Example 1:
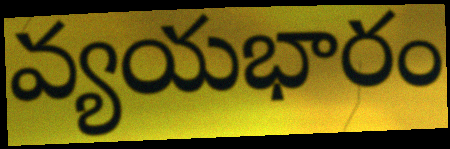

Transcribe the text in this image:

వ్యయభారం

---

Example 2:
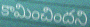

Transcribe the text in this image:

కామించిందని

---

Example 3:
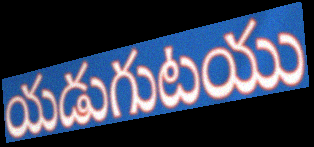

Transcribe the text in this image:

యడుగుటయు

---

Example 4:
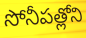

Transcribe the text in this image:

సోనీపత్లోని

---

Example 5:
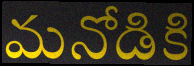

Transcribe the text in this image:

మనోడికి